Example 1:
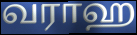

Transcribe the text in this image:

வராஹ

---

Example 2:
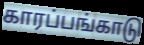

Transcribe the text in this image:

காரப்பங்காடு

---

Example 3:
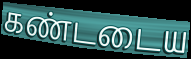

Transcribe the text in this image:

கண்டடைய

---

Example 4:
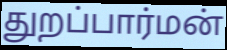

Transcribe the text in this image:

துறப்பார்மன்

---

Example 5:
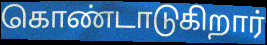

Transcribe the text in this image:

கொண்டாடுகிறார்